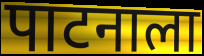
पाटनाला